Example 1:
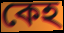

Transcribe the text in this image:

কেহ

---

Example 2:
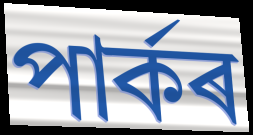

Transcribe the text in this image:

পাৰ্কৰ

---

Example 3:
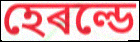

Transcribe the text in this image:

হেৰল্ডে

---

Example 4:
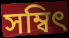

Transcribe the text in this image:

সম্বিৎ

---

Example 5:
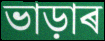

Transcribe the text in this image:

ভাড়াৰ